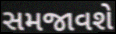
સમજાવશે